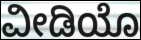
ವೀಡಿಯೊ